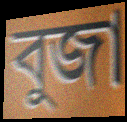
বুজা